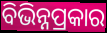
ବିଭିନ୍ନପ୍ରକାର